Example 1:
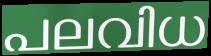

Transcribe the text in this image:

പലവിധ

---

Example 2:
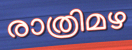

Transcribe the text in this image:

രാത്രിമഴ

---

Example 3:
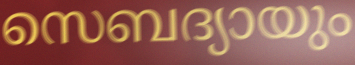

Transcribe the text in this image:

സെബദ്യായും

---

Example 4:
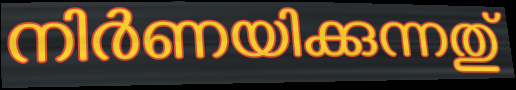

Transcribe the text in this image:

നിർണയിക്കുന്നതു്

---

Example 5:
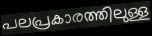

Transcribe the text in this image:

പലപ്രകാരത്തിലുള്ള